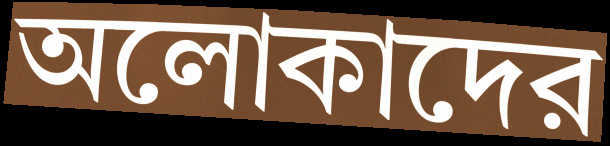
অলোকাদের